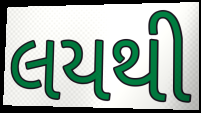
લયથી